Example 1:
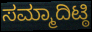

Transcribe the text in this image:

ಸಮ್ಮಾದಿಟ್ಠಿ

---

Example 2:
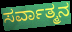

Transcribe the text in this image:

ಸರ್ವಾತ್ಮನ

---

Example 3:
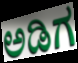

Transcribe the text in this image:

ಅಡಿಗ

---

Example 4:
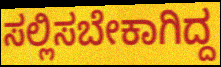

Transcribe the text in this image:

ಸಲ್ಲಿಸಬೇಕಾಗಿದ್ದ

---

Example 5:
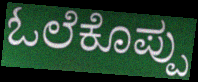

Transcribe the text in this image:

ಓಲೆಕೊಪ್ಪು